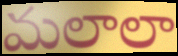
మలాలా